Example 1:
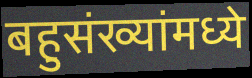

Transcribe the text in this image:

बहुसंख्यांमध्ये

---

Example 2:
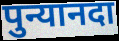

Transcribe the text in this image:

पुन्यानदा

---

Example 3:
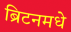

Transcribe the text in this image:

ब्रिटनमधे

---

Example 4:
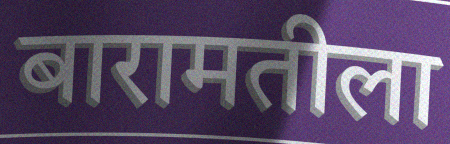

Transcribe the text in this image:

बारामतीला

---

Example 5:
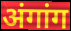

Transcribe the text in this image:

अंगांग